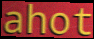
ahot